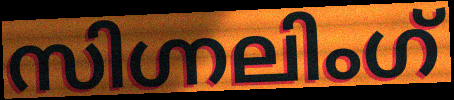
സിഗ്നലിംഗ്